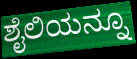
ಶೈಲಿಯನ್ನೂ